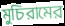
মুচিরামের